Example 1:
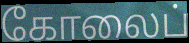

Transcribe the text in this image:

கோலைப்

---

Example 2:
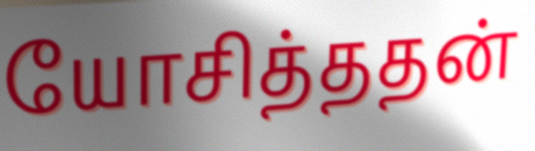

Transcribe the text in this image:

யோசித்ததன்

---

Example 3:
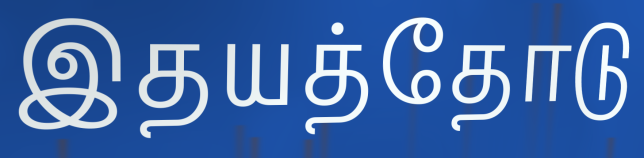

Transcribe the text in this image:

இதயத்தோடு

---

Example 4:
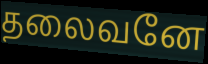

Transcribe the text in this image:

தலைவனே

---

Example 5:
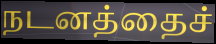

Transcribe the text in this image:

நடனத்தைச்